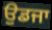
ਉਡਜਾ